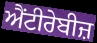
ਐਂਟੀਰੇਬੀਜ਼